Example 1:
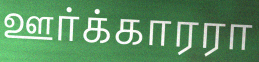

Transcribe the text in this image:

ஊர்க்காரரா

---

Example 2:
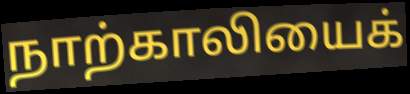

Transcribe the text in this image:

நாற்காலியைக்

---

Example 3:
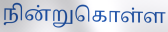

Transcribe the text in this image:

நின்றுகொள்ள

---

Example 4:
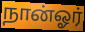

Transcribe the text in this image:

நான்ஓர்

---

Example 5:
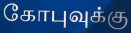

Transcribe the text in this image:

கோபுவுக்கு